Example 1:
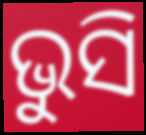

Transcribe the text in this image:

ଭୁସି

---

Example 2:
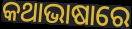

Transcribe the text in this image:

କଥାଭାଷାରେ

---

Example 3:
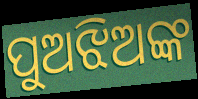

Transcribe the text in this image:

ପୁଅଝିଅଙ୍କ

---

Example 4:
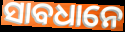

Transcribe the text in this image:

ସାବଧାନେ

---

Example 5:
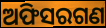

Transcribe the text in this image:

ଅଫିସରଗଣ